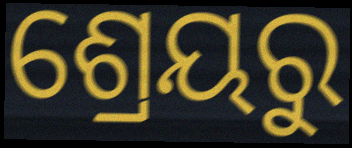
ଶ୍ରେୟରୁ